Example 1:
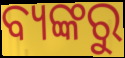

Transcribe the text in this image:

ବ୍ୟଙ୍କରୁ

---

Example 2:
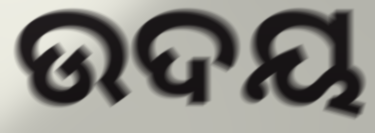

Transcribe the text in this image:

ଉଦୟ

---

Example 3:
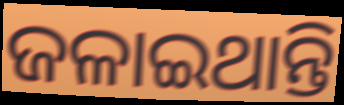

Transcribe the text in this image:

ଜଳାଇଥାନ୍ତି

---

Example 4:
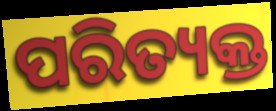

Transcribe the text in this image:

ପରିତ୍ୟକ୍ତ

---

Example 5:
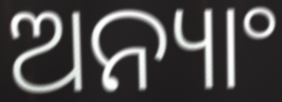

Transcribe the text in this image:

ଅନ୍ୟାଂ